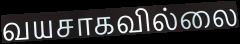
வயசாகவில்லை